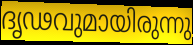
ദൃഢവുമായിരുന്നു